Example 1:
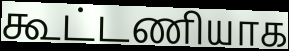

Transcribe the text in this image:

கூட்டணியாக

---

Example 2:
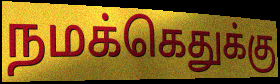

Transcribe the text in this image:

நமக்கெதுக்கு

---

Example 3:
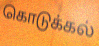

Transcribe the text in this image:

கொடுக்கல்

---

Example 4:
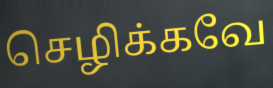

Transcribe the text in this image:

செழிக்கவே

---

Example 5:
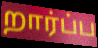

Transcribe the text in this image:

றார்ப்ப